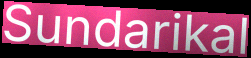
Sundarikal